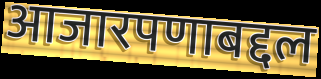
आजारपणाबद्दल